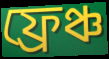
ফ্ৰেঞ্চ